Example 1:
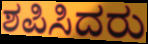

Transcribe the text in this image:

ಶಪಿಸಿದರು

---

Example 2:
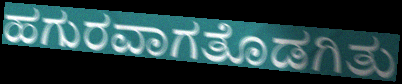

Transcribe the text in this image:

ಹಗುರವಾಗತೊಡಗಿತು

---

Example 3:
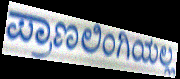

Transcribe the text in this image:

ಪ್ರಾಣಲಿಂಗಿಯಲ್ಲ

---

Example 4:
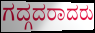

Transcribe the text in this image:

ಗದ್ಗದರಾದರು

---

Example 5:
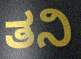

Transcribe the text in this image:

ತನಿ